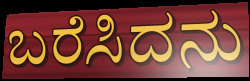
ಬರೆಸಿದನು